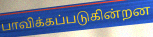
பாவிக்கப்படுகின்றன